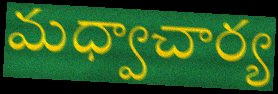
మధ్వాచార్య